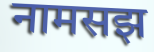
नामसझ